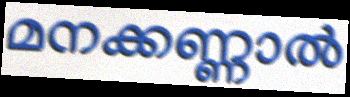
മനക്കണ്ണാൽ